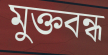
মুক্তবন্ধ